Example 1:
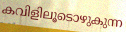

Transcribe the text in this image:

കവിളിലൂടൊഴുകുന്ന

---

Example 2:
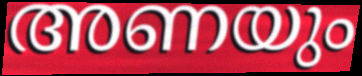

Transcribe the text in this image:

അണയും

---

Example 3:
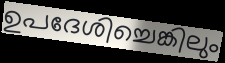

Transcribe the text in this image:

ഉപദേശിച്ചെങ്കിലും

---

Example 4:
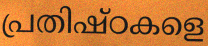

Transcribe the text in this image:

പ്രതിഷ്ഠകളെ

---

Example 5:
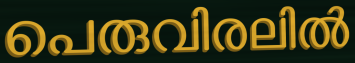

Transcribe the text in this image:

പെരുവിരലിൽ